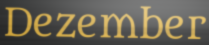
Dezember